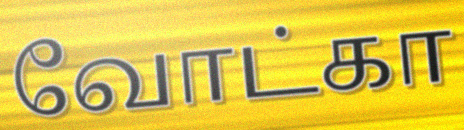
வோட்கா